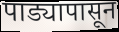
पाड्यापासून